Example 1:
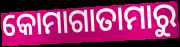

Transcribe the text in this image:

କୋମାଗାତାମାରୁ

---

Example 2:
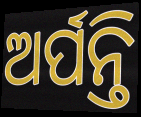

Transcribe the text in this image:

ଅର୍ପନ୍ତି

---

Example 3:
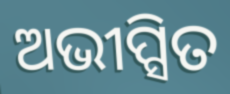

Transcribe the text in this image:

ଅଭୀପ୍ସିତ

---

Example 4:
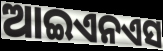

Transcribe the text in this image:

ଆଇଏନଏସ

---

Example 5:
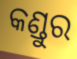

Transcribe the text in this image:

କଣ୍ଡୁର